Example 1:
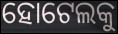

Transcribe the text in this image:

ହୋଟେଲକୁ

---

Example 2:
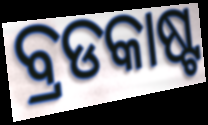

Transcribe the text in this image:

ବ୍ରଡକାଷ୍ଟ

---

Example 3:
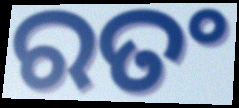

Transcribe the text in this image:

ରତଂ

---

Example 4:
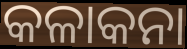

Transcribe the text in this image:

କଳାକନା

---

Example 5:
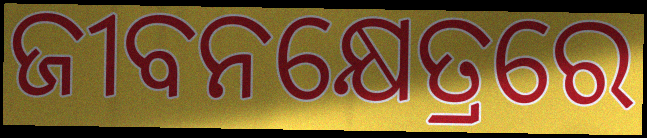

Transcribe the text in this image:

ଜୀବନକ୍ଷେତ୍ରରେ